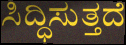
ಸಿದ್ಧಿಸುತ್ತದೆ